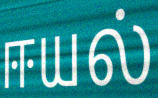
ஈயல்